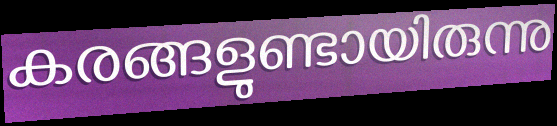
കരങ്ങളുണ്ടായിരുന്നു